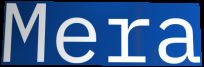
Mera